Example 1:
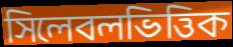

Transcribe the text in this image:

সিলেবলভিত্তিক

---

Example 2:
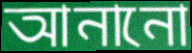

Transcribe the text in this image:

আনানো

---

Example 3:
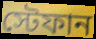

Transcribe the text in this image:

স্টেফান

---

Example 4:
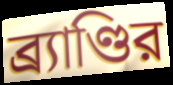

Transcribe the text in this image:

ব্র্যাণ্ডির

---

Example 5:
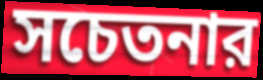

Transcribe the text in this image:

সচেতনার